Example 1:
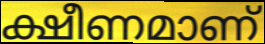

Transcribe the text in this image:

ക്ഷീണമാണ്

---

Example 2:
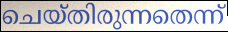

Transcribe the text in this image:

ചെയ്തിരുന്നതെന്ന്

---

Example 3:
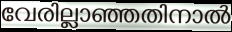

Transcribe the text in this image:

വേരില്ലാഞ്ഞതിനാൽ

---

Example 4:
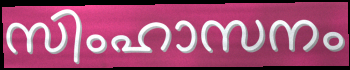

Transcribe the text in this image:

സിംഹാസനം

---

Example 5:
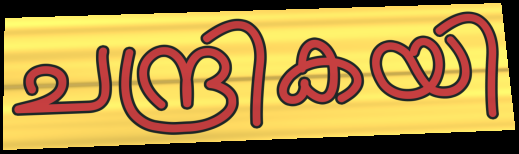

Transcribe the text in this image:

ചന്ദ്രികയി